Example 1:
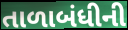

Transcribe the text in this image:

તાળાબંધીની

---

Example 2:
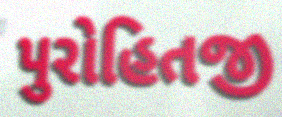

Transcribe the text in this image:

પુરોહિતજી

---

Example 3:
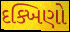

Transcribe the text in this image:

દક્ખિણો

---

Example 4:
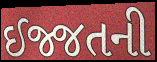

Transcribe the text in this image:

ઈજ્જતની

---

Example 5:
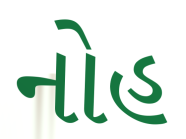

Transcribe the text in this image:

નોહ